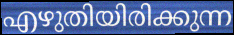
എഴുതിയിരിക്കുന്ന